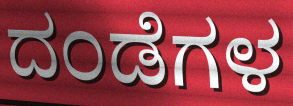
ದಂಡೆಗಳ